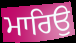
ਮਾਰਿਉ